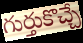
గుర్తుకొచ్చే